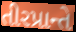
તીરપ્રાન્તે